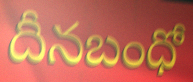
దీనబంధో